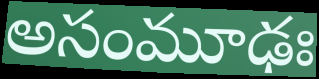
అసంమూఢః